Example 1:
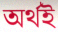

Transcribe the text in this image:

অর্থই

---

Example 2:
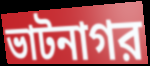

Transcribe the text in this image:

ভাটনাগর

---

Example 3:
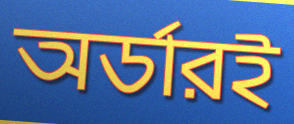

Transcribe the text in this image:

অর্ডারই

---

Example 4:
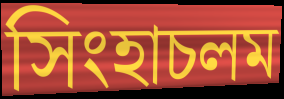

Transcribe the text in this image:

সিংহাচলম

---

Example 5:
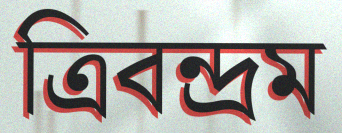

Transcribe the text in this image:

ত্রিবন্দ্রম